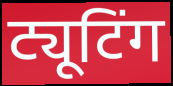
ट्यूटिंग